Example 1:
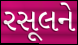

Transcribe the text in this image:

રસૂલને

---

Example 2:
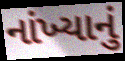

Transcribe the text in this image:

નાંખ્યાનું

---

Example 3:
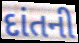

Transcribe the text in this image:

દાંતની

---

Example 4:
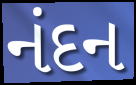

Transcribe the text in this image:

નંદન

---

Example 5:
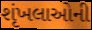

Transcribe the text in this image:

શૃંખલાઓની